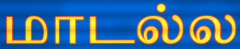
மாடல்ல